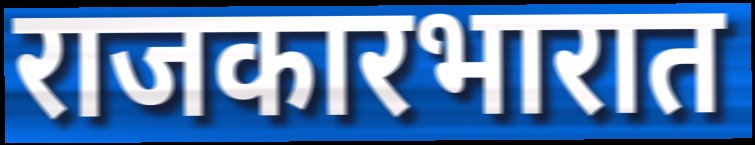
राजकारभारात